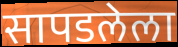
सापडलेला